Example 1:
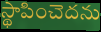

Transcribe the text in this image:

స్థాపించెదను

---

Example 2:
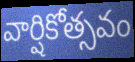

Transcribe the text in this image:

వార్షికోత్సవం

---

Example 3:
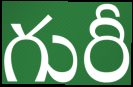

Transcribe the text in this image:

గురీ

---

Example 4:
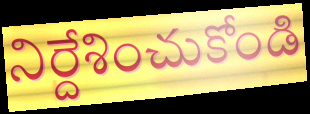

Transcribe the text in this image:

నిర్దేశించుకోండి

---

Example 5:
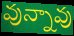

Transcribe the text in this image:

వున్నావు